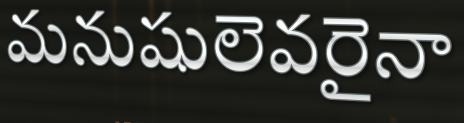
మనుషులెవరైనా